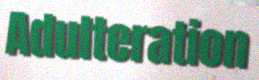
Adulteration